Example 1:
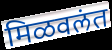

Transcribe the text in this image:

मिळवलंत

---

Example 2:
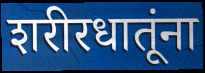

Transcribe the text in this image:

शरीरधातूंना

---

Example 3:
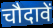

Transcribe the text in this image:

चौदावें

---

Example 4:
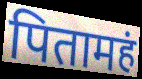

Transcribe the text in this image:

पितामहं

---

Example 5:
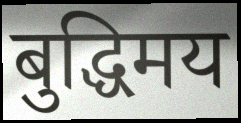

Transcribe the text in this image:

बुद्धिमय